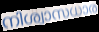
നിശ്വാസധാര